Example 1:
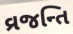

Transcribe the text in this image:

વ્રજન્તિ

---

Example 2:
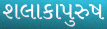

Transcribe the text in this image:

શલાકાપુરુષ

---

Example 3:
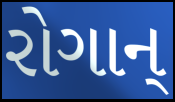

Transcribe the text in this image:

રોગાન્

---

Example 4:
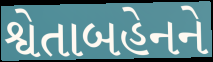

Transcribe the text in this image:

શ્વેતાબહેનને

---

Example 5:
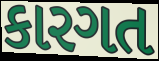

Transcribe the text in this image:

કારગત